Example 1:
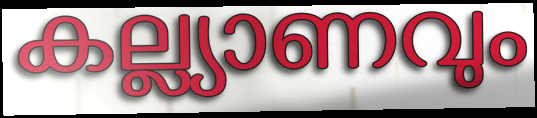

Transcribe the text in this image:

കല്ല്യാണവും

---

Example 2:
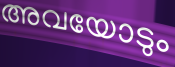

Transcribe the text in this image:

അവയോടും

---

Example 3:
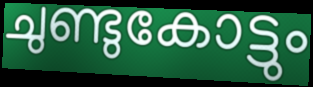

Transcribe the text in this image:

ചുണ്ടുകോട്ടും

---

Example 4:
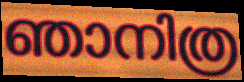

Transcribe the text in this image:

ഞാനിത്ര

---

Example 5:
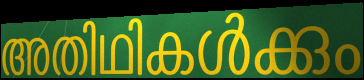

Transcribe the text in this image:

അതിഥികൾക്കും